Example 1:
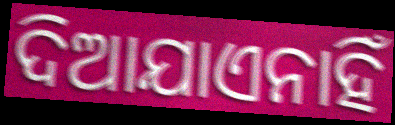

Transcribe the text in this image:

ଦିଆଯାଏନାହିଁ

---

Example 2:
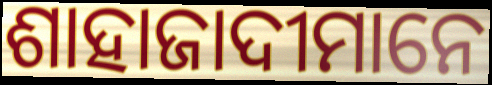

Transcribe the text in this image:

ଶାହାଜାଦୀମାନେ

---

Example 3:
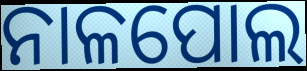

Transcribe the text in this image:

ନାଳପୋଲ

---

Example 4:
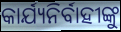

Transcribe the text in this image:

କାର୍ଯ୍ୟନିର୍ବାହୀଙ୍କୁ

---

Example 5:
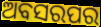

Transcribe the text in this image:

ଅବସରପର